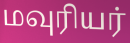
மவுரியர்